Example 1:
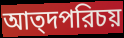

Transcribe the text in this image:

আত্দপরিচয়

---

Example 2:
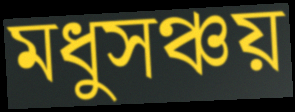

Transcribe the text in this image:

মধুসঞ্চয়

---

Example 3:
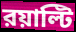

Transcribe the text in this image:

রয়াল্টি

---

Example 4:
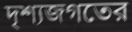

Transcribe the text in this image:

দৃশ্যজগতের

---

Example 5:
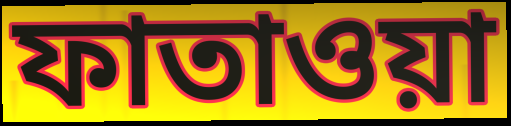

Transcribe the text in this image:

ফাতাওয়া